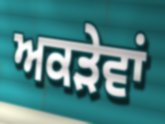
ਅਕੜੇਵਾਂ